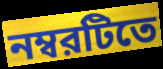
নম্বরটিতে